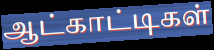
ஆட்காட்டிகள்